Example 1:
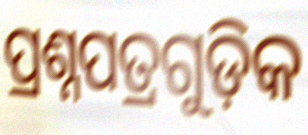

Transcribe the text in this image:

ପ୍ରଶ୍ନପତ୍ରଗୁଡ଼ିକ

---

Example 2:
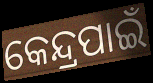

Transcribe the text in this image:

କେନ୍ଦ୍ରପାଇଁ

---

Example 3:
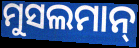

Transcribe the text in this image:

ମୁସଲମାନ୍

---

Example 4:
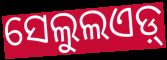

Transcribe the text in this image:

ସେଲୁଲଏଡ଼୍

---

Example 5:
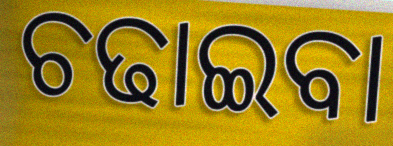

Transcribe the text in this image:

ଚଢାଇବା